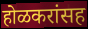
होळकरांसह